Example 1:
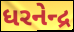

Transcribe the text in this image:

ધરનેન્દ્ર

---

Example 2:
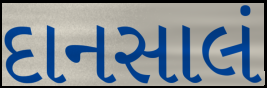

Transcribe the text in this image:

દાનસાલં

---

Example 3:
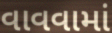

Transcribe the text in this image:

વાવવામાં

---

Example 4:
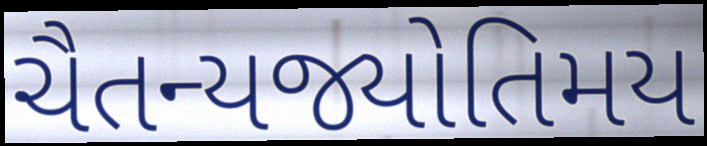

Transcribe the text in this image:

ચૈતન્યજ્યોતિમય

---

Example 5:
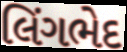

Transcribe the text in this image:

લિંગભેદ